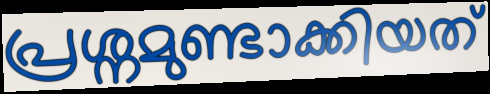
പ്രശ്നമുണ്ടാക്കിയത്